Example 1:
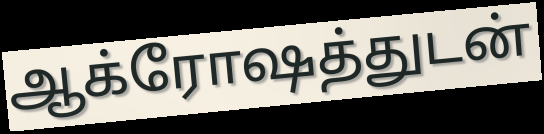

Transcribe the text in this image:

ஆக்ரோஷத்துடன்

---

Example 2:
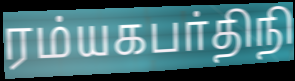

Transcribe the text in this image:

ரம்யகபர்திநி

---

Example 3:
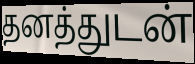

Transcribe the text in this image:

தனத்துடன்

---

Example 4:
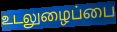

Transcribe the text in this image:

உடலுழைப்பை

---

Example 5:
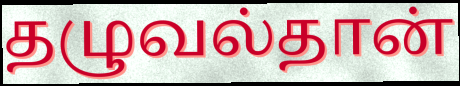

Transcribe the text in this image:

தழுவல்தான்